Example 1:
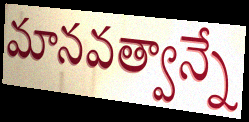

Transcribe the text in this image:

మానవత్వాన్నే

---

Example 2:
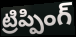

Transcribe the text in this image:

ట్రిప్పింగ్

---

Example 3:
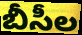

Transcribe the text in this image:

బీసీల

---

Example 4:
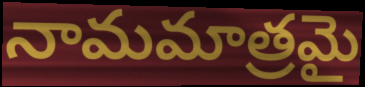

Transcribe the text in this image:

నామమాత్రమై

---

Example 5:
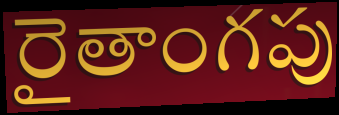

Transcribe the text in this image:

రైతాంగపు